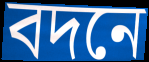
বদনে